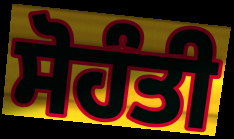
ਸੋਹੰਤੀ